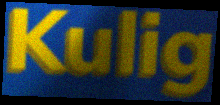
Kulig